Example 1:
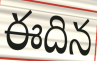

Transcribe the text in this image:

ఈదిన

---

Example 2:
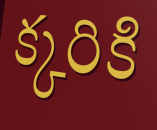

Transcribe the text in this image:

క్కరికి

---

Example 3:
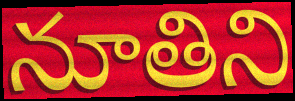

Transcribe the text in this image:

నూతిని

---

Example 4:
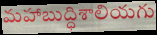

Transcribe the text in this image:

మహాబుద్ధిశాలియగు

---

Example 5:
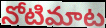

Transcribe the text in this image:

నోటిమాట